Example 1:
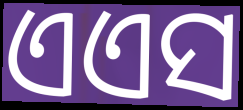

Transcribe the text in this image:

ଏଏସ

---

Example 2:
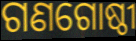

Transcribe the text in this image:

ଗଣଗୋଷ୍ଠୀ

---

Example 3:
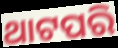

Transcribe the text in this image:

ଥାଟପରି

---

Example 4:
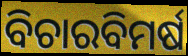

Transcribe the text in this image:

ବିଚାରବିମର୍ଷ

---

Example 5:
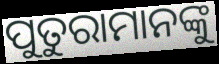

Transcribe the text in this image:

ପୁତୁରାମାନଙ୍କୁ